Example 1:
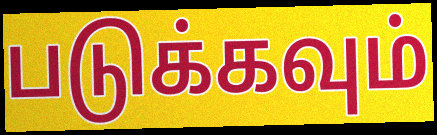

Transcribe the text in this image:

படுக்கவும்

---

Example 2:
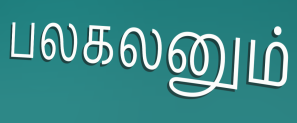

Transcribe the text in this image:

பலகலனும்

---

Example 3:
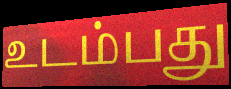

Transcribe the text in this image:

உடம்பது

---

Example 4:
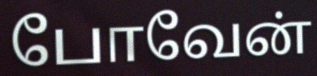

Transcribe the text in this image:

போவேன்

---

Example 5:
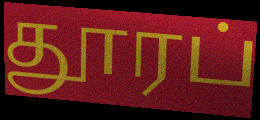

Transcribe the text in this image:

தூரப்